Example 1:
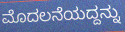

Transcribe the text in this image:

ಮೊದಲನೆಯದ್ದನ್ನು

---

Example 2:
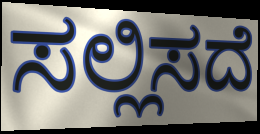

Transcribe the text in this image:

ಸಲ್ಲಿಸದೆ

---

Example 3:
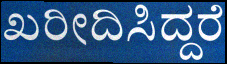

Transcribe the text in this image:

ಖರೀದಿಸಿದ್ದರೆ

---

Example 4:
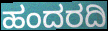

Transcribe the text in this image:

ಹಂದರದಿ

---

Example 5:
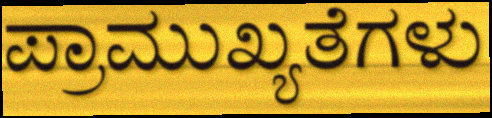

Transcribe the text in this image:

ಪ್ರಾಮುಖ್ಯತೆಗಳು